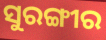
ସୁରଙ୍ଗୀର